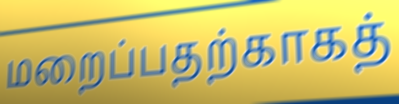
மறைப்பதற்காகத்